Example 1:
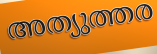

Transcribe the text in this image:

അത്യുത്തര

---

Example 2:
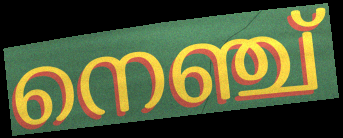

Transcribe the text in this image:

നെഞ്ച്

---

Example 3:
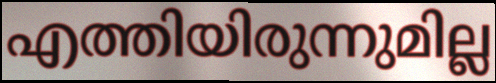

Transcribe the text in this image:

എത്തിയിരുന്നുമില്ല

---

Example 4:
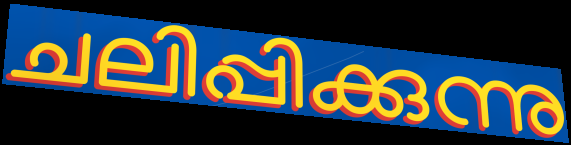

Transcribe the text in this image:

ചലിപ്പിക്കുന്നു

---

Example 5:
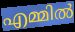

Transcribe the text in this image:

എമ്മിൽ